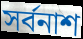
সৰ্বনাশ